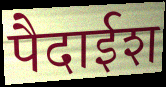
पैदाईश